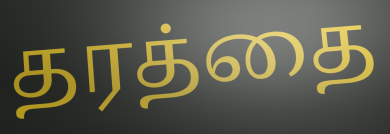
தரத்தை